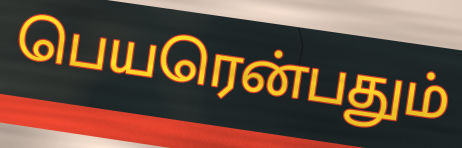
பெயரென்பதும்